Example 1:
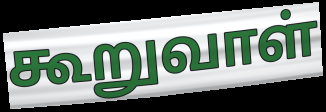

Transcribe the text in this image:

கூறுவாள்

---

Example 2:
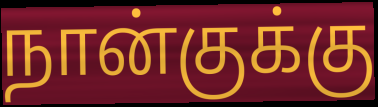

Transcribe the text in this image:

நான்குக்கு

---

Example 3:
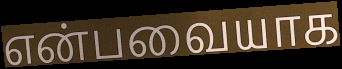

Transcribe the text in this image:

என்பவையாக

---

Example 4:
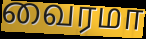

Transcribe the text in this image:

வைரமா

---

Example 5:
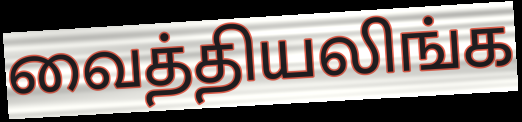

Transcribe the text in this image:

வைத்தியலிங்க